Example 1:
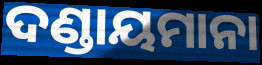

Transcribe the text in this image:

ଦଣ୍ଡାୟମାନା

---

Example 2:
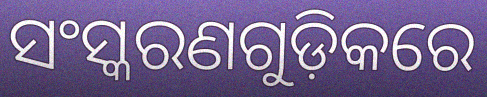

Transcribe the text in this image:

ସଂସ୍କରଣଗୁଡ଼ିକରେ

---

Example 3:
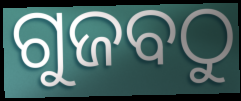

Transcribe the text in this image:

ଗୁଜବଠୁ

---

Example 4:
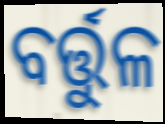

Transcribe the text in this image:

ବର୍ତ୍ତୁଳ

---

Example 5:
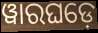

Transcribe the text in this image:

ୱାରଘଡ଼େ